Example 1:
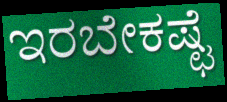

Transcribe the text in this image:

ಇರಬೇಕಷ್ಟೆ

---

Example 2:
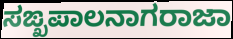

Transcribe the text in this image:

ಸಙ್ಖಪಾಲನಾಗರಾಜಾ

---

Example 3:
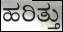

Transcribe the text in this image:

ಹರಿತ್ತು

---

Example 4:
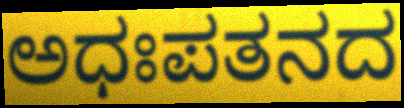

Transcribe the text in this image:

ಅಧಃಪತನದ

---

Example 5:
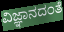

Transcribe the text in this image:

ವಿಜ್ಞಾನದಂತೆ